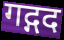
गद्गद